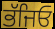
ਭੱਜਿਓ